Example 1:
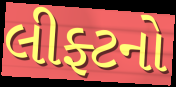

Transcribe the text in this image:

લીફ્ટનો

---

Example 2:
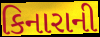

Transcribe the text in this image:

કિનારાની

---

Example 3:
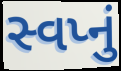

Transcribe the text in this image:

સ્વપ્નું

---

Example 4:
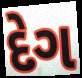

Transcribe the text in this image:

દેગ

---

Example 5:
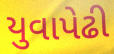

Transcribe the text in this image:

યુવાપેઢી